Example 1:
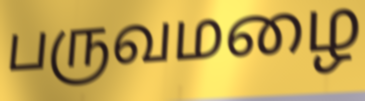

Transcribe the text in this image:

பருவமழை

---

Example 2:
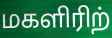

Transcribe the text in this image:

மகளிரிற்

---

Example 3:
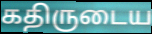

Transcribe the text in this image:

கதிருடைய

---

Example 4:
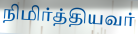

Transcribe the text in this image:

நிமிர்த்தியவர்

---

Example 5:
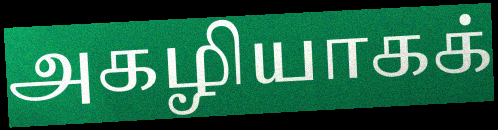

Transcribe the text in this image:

அகழியாகக்